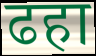
ढहा